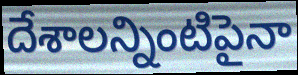
దేశాలన్నింటిపైనా